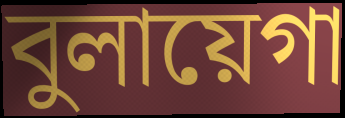
বুলায়েগা